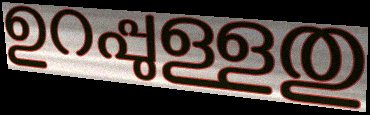
ഉറപ്പുള്ളതു